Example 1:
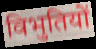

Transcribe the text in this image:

विभुतियों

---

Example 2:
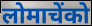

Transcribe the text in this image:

लोमाचेंको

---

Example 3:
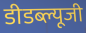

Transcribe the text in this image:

डीडब्ल्यूजी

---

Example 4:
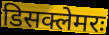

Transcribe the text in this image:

डिसक्लेमरः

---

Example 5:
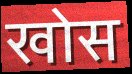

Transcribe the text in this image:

खोस